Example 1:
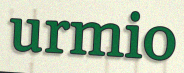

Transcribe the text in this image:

urmio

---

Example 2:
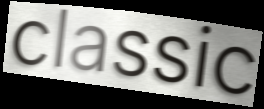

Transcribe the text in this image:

classic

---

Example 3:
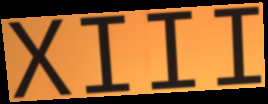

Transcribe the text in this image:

XIII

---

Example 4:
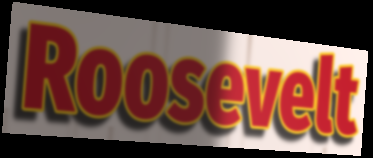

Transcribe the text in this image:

Roosevelt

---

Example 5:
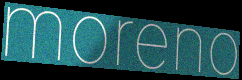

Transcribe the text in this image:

moreno